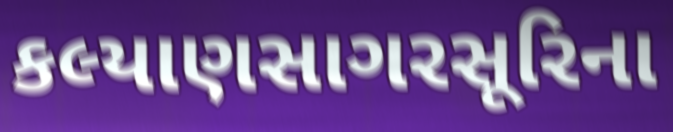
કલ્યાણસાગરસૂરિના